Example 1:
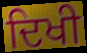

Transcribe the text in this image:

ਦਿਖੀ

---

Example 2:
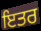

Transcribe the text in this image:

ਇਤਰ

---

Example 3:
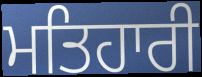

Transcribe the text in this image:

ਮਤਿਹਾਰੀ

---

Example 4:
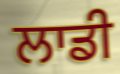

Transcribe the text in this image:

ਲਾਡੀ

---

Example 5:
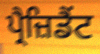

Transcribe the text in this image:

ਪ੍ਰੈਜ਼ਿਡੈਂਟ